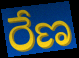
రేణ